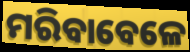
ମରିବାବେଳେ